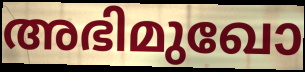
അഭിമുഖോ